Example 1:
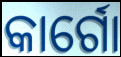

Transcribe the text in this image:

କାର୍ଗୋ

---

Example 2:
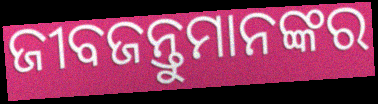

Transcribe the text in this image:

ଜୀବଜନ୍ତୁମାନଙ୍କର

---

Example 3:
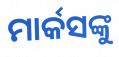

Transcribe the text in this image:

ମାର୍କସଙ୍କୁ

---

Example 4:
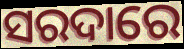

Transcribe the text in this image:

ସରଦାରେ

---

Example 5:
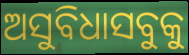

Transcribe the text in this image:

ଅସୁବିଧାସବୁକୁ